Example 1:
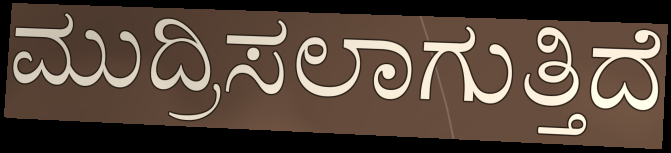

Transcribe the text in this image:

ಮುದ್ರಿಸಲಾಗುತ್ತಿದೆ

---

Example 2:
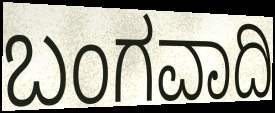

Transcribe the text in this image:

ಬಂಗವಾದಿ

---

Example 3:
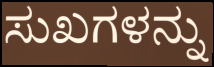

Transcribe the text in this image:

ಸುಖಗಳನ್ನು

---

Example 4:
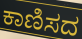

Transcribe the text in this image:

ಕಾಣಿಸದ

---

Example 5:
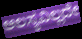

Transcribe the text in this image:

ಆಲಸ್ಯವಿಲ್ಲದೇ